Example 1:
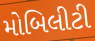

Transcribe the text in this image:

મોબિલીટી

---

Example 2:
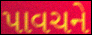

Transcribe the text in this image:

પાવચને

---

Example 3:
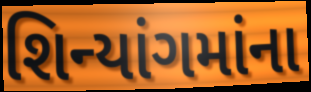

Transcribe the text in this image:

શિન્યાંગમાંના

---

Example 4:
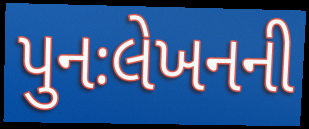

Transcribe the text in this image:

પુનઃલેખનની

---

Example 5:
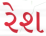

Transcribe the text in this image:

રેશ